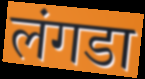
लंगडा